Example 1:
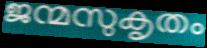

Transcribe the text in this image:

ജന്മസുകൃതം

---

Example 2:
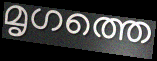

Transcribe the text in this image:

മൃഗത്തെ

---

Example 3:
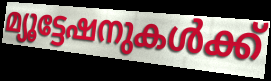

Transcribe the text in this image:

മ്യൂട്ടേഷനുകൾക്ക്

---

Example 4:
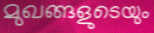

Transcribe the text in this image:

മുഖങ്ങളുടെയും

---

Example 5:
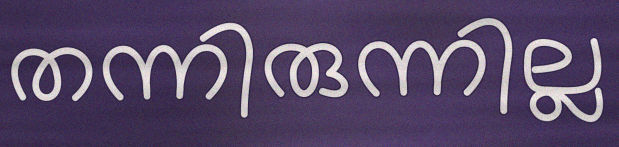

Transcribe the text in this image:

തന്നിരുന്നില്ല